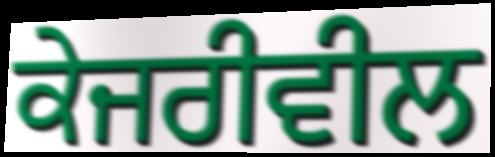
ਕੇਜਰੀਵੀਲ